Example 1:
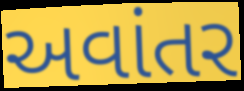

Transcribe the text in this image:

અવાંતર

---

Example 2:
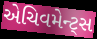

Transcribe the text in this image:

એચિવમેન્ટ્સ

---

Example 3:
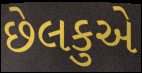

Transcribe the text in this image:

છેલકુએ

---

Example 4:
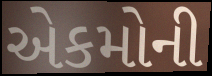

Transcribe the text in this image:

એકમોની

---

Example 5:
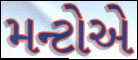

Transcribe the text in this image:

મન્ટોએ